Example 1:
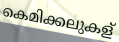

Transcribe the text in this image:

കെമിക്കലുകള്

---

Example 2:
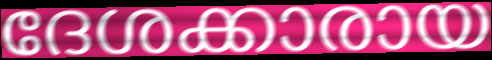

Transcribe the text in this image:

ദേശക്കാരായ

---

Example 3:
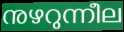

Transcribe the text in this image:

നുഴറുന്നീല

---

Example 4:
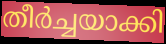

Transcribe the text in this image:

തീർച്ചയാക്കി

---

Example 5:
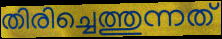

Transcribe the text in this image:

തിരിച്ചെത്തുന്നത്